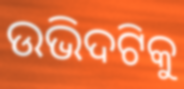
ଉଭିଦଟିକୁ